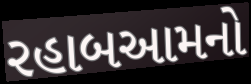
રહાબઆમનો